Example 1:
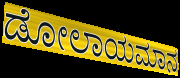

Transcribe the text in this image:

ಡೋಲಾಯಮಾನ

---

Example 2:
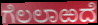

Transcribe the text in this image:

ಗೆಲಲಾಱದೆ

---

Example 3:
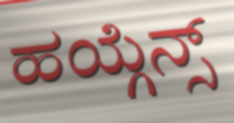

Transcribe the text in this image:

ಹಯ್ಗೆನ್ಸ್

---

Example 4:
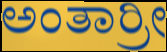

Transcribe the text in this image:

ಅಂತಾರ್ರೀ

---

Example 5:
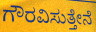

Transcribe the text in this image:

ಗೌರವಿಸುತ್ತೇನೆ